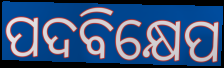
ପଦବିକ୍ଷେପ